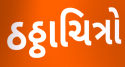
ઠઠ્ઠાચિત્રો